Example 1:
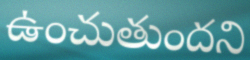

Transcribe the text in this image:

ఉంచుతుందని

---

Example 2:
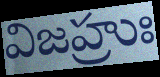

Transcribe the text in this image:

విజహ్రుః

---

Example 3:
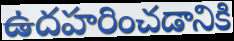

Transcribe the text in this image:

ఉదహరించడానికి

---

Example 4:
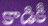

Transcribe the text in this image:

కాడికీ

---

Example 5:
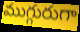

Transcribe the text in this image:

ముగ్గురుగా